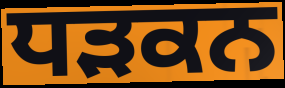
ਧੜਕਨ